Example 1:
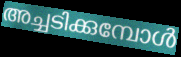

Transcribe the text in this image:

അച്ചടിക്കുമ്പോൾ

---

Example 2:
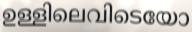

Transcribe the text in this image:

ഉള്ളിലെവിടെയോ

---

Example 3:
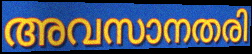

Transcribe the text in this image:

അവസാനതരി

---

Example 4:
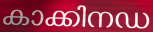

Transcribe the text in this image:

കാക്കിനഡ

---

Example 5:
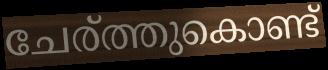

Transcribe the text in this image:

ചേര്ത്തുകൊണ്ട്